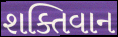
શક્તિવાન